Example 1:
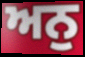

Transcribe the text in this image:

ਅਨੁ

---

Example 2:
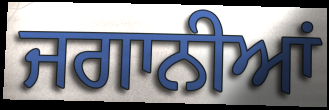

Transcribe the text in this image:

ਜਗਾਨੀਆਂ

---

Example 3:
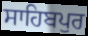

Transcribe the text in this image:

ਸਾਹਿਬਪੁਰ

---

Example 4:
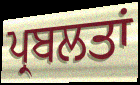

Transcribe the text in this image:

ਪ੍ਰਬਲਤਾਂ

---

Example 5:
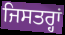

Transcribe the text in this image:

ਜਿਸਤਰ੍ਹਾਂ